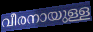
വീരനായുള്ള